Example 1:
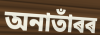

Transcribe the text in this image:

অনাতাঁৰৰ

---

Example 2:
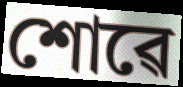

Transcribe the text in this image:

শোৱে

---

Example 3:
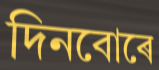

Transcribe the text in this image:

দিনবোৰে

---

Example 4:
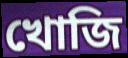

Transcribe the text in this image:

খোজি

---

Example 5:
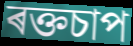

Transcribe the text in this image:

ৰক্তচাপ